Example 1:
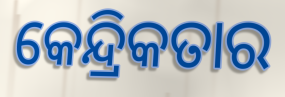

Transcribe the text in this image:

କେନ୍ଦ୍ରିକତାର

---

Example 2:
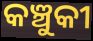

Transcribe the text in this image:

କଞ୍ଚୁକୀ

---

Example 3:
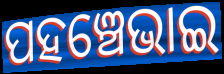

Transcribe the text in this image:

ପହଞ୍ଚେଭାଇ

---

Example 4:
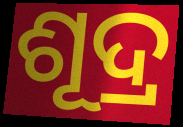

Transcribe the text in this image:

ଶୂଦ୍ର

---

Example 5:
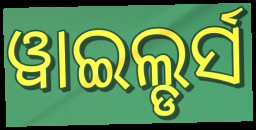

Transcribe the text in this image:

ୱାଇଲ୍ଡର୍ସ